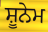
ਸ਼ੂਨੇਮ